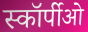
स्कॉर्पीओ